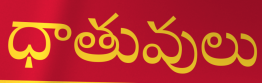
ధాతువులు